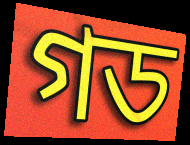
গড